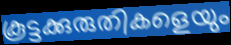
കൂട്ടക്കുരുതികളെയും